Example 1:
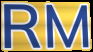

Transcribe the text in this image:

RM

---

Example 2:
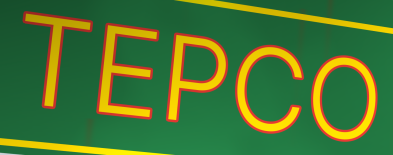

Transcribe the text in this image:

TEPCO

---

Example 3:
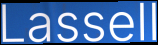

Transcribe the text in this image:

Lassell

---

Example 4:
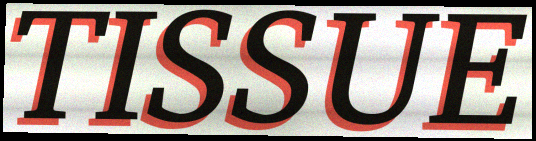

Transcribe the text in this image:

TISSUE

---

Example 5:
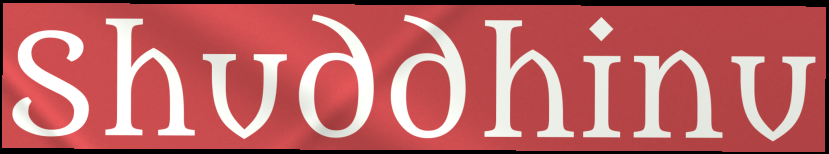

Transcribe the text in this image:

Shuddhinu